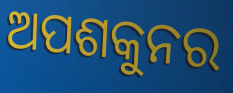
ଅପଶକୁନର